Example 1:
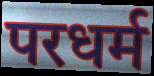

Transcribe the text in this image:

परधर्म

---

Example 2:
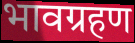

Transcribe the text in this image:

भावग्रहण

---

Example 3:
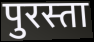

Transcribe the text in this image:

पुरस्ता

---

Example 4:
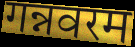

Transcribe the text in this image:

गन्नवरम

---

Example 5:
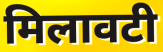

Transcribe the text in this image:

मिलावटी